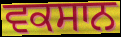
ਵਕਸਾਨ